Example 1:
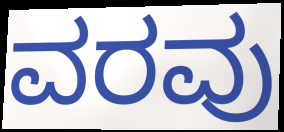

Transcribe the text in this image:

ವರವು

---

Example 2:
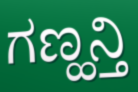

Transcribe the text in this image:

ಗಣ್ಹನ್ತಿ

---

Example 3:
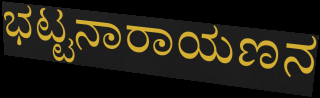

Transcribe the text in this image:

ಭಟ್ಟನಾರಾಯಣನ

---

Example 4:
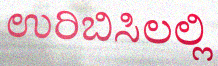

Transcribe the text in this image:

ಉರಿಬಿಸಿಲಲ್ಲಿ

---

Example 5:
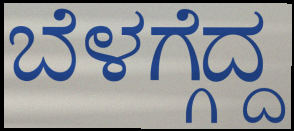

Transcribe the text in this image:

ಬೆಳಗ್ಗೆದ್ದ